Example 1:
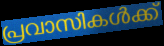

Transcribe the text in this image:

പ്രവാസികൾക്ക്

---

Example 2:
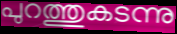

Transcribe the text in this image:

പുറത്തുകടന്നു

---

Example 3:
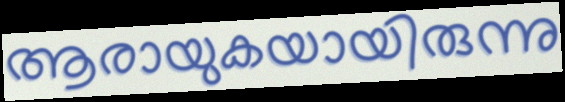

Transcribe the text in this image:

ആരായുകയായിരുന്നു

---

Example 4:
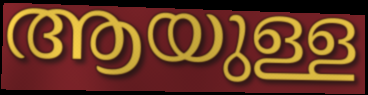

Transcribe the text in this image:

ആയുള്ള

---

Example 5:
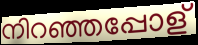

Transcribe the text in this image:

നിറഞ്ഞപ്പോള്